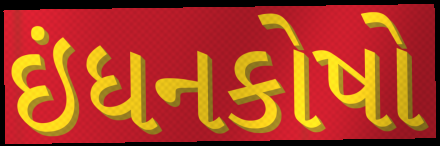
ઇંધનકોષો